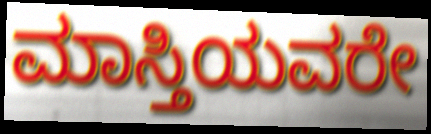
ಮಾಸ್ತಿಯವರೇ